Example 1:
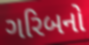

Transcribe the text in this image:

ગરિબનો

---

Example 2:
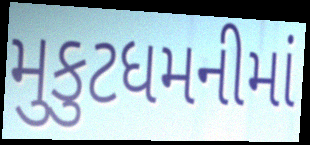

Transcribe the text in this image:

મુકુટધમનીમાં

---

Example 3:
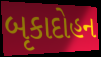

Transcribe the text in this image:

બૃકાદોહન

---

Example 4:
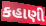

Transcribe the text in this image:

કહાણી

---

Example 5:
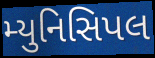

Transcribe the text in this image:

મ્યુનિસિપલ